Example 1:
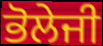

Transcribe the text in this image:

ਭੋਲੇਜੀ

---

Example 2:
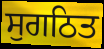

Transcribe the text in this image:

ਸੁਗਠਿਤ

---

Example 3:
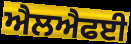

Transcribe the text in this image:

ਐਲਐਫਈ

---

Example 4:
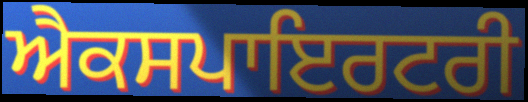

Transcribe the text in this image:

ਐਕਸਪਾਇਰਟਰੀ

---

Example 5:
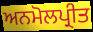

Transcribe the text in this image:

ਅਨਮੋਲਪ੍ਰੀਤ